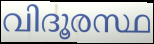
വിദൂരസ്ഥ